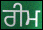
ਰੀਮ